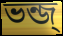
ভন্জ্